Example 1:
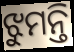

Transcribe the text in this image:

ଝୁମନ୍ତି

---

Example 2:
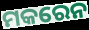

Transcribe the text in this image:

ମକରେନ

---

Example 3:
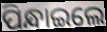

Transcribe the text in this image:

ପିନ୍ଧାଇଲେ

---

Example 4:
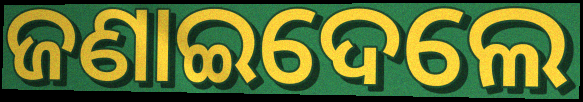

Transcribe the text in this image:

ଜଣାଇଦେଲେ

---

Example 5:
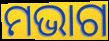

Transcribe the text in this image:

ମଭାଗ